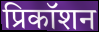
प्रिकॉशन